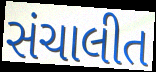
સંચાલીત